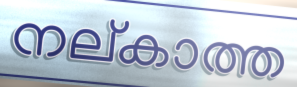
നല്കാത്ത